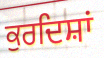
ਕੁਰਦਿਸ਼ਾਂ